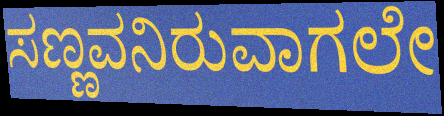
ಸಣ್ಣವನಿರುವಾಗಲೇ